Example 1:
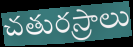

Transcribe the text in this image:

చతురస్రాలు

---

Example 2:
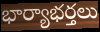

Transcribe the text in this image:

భార్యాభర్తలు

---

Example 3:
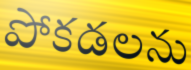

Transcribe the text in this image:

పోకడలను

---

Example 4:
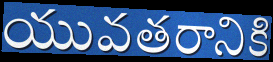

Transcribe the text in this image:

యువతరానికి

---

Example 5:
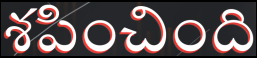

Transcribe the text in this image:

శపించింది